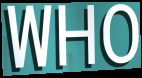
WHO